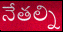
నేతల్ని